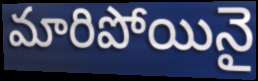
మారిపోయినై